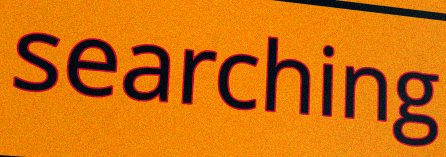
searching